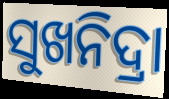
ସୁଖନିଦ୍ରା